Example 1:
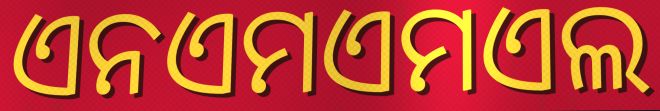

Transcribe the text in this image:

ଏନଏମଏମଏଲ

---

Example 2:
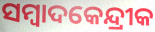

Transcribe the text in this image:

ସମ୍ୱାଦକେନ୍ଦ୍ରୀକ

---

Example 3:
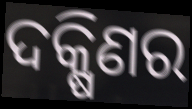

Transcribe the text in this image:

ଦକ୍ଷିଣର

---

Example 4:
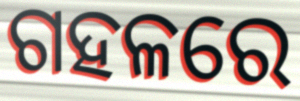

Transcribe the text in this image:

ଗହଳରେ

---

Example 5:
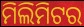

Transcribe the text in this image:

ମିଲିମିଟର